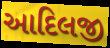
આદિલજી